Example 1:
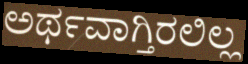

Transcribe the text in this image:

ಅರ್ಥವಾಗ್ತಿರಲಿಲ್ಲ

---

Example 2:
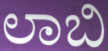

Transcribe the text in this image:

ಲಾಬಿ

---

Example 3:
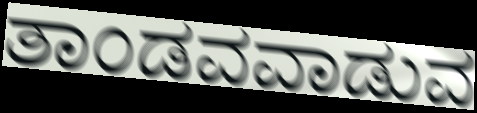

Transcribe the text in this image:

ತಾಂಡವವಾಡುವ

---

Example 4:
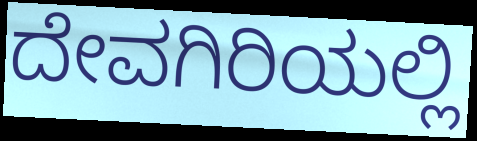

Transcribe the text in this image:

ದೇವಗಿರಿಯಲ್ಲಿ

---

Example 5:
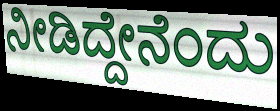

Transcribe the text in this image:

ನೀಡಿದ್ದೇನೆಂದು